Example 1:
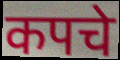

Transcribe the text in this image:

कपचे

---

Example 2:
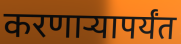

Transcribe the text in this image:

करणाऱ्यापर्यंत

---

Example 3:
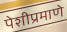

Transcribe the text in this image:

पेशीप्रमाणे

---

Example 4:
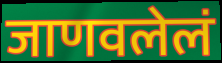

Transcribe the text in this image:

जाणवलेलं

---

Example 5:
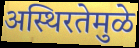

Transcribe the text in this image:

अस्थिरतेमुळे